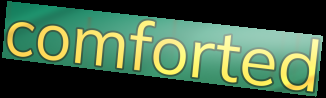
comforted